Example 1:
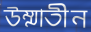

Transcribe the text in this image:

উম্মাতীন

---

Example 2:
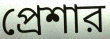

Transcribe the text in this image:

প্রেশার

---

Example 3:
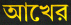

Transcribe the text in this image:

আখের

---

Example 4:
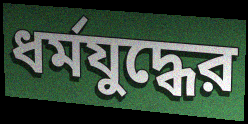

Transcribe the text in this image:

ধর্মযুদ্ধের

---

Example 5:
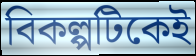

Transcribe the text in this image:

বিকল্পটিকেই